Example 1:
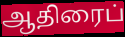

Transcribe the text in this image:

ஆதிரைப்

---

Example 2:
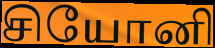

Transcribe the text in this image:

சியோனி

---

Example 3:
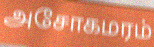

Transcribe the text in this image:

அசோகமரம்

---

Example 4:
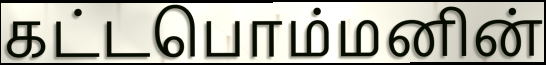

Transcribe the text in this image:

கட்டபொம்மனின்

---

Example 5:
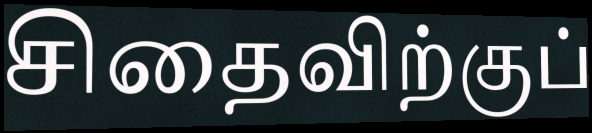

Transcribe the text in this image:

சிதைவிற்குப்